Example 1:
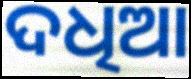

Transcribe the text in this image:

ଦଧିଆ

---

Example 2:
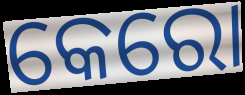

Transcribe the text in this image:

କେରୋ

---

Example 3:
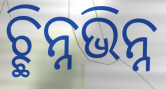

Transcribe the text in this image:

ଚ୍ଛିନ୍ନଭିନ୍ନ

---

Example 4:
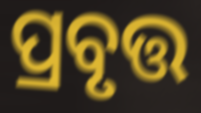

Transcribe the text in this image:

ପ୍ରବୃତ୍ତ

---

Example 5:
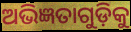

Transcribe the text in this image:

ଅଭିଜ୍ଞତାଗୁଡ଼ିକୁ